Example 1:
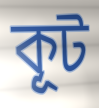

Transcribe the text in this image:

কূট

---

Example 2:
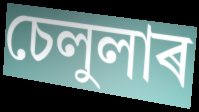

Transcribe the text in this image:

চেলুলাৰ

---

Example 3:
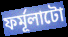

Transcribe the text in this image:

ফৰ্মূলাটো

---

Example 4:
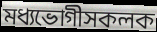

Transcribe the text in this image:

মধ্যভোগীসকলক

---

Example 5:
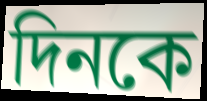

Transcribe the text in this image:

দিনকে